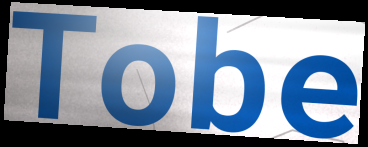
Tobe